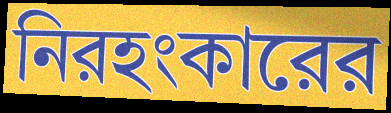
নিরহংকারের